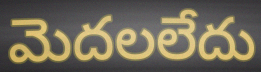
మెదలలేదు